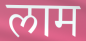
लाम